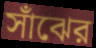
সাঁঝের